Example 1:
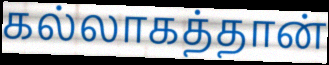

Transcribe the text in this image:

கல்லாகத்தான்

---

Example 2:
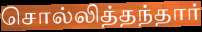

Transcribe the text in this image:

சொல்லித்தந்தார்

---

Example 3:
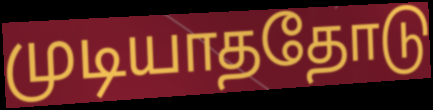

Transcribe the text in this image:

முடியாததோடு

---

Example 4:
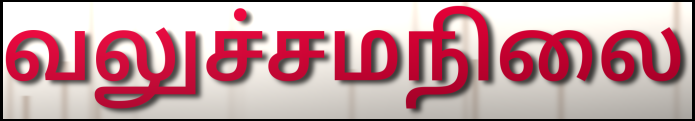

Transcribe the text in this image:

வலுச்சமநிலை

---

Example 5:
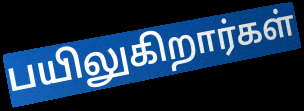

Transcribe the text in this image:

பயிலுகிறார்கள்